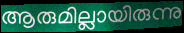
ആരുമില്ലായിരുന്നു